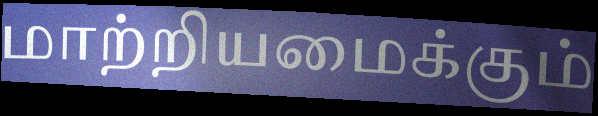
மாற்றியமைக்கும்